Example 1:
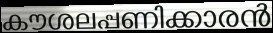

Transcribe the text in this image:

കൗശലപ്പണിക്കാരൻ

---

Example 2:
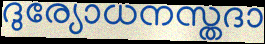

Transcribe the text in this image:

ദുര്യോധനസ്തദാ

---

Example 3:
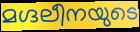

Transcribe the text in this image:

മഗ്ദലീനയുടെ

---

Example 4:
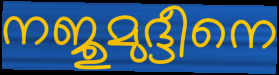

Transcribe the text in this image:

നജുമുദ്ദീനെ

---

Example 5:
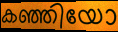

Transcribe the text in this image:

കഞ്ഞിയോ